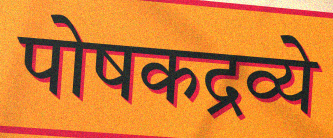
पोषकद्रव्ये